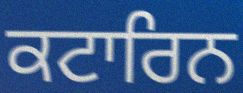
ਕਟਾਰਿਨ